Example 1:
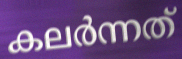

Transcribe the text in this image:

കലർന്നത്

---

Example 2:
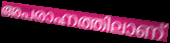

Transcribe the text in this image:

അപരാഹ്നത്തിലാണ്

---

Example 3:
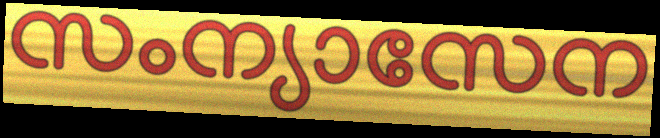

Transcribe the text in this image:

സംന്യാസേന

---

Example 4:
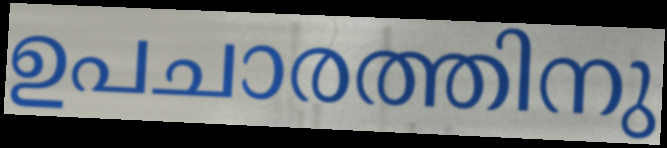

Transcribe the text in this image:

ഉപചാരത്തിനു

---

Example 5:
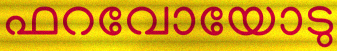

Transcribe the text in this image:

ഫറവോയോടു